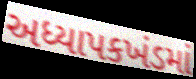
અધ્યાપકખંડમાં